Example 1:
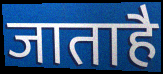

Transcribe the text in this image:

जाताहै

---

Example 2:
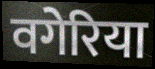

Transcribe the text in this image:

वगेरिया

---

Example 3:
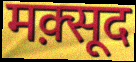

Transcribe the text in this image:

मक़्सूद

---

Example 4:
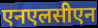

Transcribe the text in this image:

एनएलसीएन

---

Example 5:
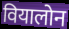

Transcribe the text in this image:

वियालोन